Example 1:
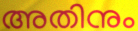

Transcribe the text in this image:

അതിനും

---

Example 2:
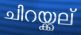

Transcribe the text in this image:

ചിറയ്ക്കല്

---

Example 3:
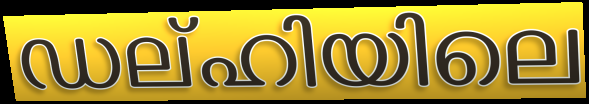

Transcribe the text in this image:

ഡല്ഹിയിലെ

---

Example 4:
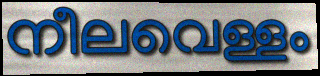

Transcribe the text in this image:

നീലവെള്ളം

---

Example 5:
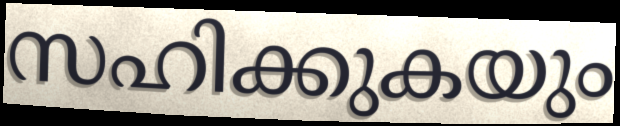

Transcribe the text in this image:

സഹിക്കുകയും